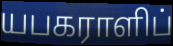
யபகராளிப்